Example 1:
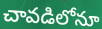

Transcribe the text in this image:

చావడిలోనూ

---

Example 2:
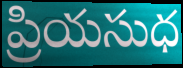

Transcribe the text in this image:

ప్రియసుధ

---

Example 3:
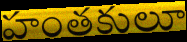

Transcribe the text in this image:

హంతకులూ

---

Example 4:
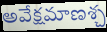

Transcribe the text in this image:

అవేక్షమాణశ్చ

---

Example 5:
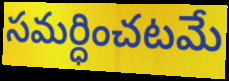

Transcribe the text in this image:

సమర్ధించటమే